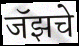
जॅझचे